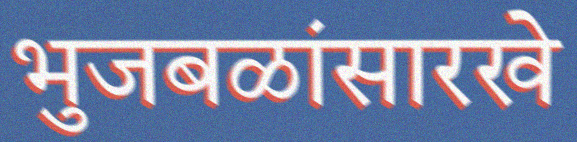
भुजबळांसारखे